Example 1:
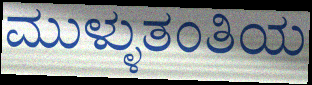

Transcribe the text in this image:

ಮುಳ್ಳುತಂತಿಯ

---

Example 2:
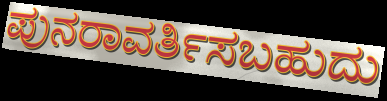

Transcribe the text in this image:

ಪುನರಾವರ್ತಿಸಬಹುದು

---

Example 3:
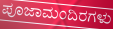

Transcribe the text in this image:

ಪೂಜಾಮಂದಿರಗಳು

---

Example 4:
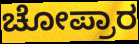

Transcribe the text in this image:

ಚೋಪ್ರಾರ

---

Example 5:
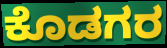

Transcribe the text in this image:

ಕೊಡಗರ